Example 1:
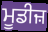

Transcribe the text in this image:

ਮੂਡੀਜ਼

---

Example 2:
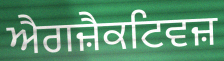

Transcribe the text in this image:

ਐਗਜ਼ੈਕਟਿਵਜ਼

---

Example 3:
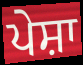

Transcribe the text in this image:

ਪੇਸ਼ਾ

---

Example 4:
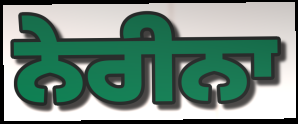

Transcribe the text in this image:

ਨੇਰੀਨਾ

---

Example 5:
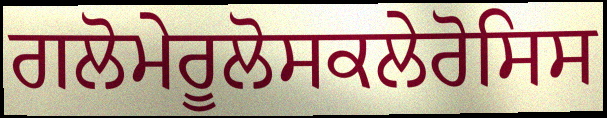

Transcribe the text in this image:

ਗਲੋਮੇਰੂਲੋਸਕਲੇਰੋਸਿਸ